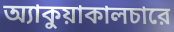
অ্যাকুয়াকালচারে